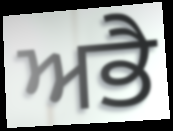
ਅਭੈ